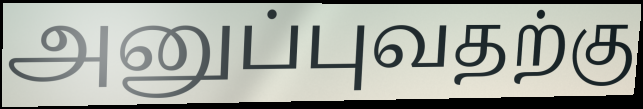
அனுப்புவதற்கு